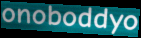
onoboddyo